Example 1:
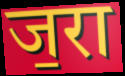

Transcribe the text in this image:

ज॒रा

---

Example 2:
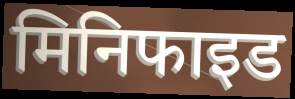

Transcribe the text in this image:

मिनिफाइड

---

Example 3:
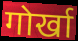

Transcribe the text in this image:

गोर्खा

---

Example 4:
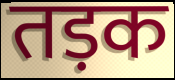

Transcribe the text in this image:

तड़क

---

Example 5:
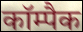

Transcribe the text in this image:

कॉम्पैक